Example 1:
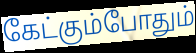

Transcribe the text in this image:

கேட்கும்போதும்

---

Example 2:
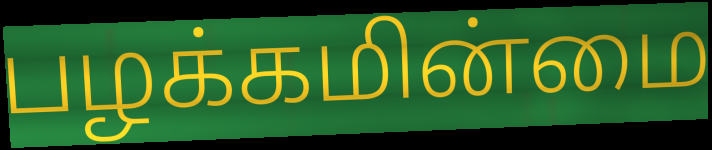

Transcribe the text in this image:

பழக்கமின்மை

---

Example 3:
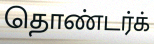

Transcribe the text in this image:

தொண்டர்க்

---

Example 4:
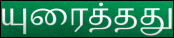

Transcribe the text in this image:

யுரைத்தது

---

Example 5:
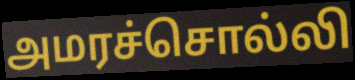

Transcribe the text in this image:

அமரச்சொல்லி